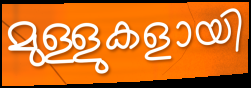
മുള്ളുകളായി